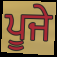
ਪੂਜੇ